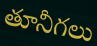
తూనీగలు